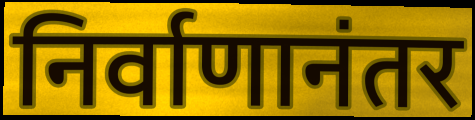
निर्वाणानंतर